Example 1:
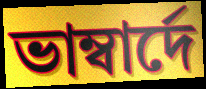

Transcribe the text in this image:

ভাম্বাৰ্দে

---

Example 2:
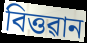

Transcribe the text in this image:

বিত্তৱান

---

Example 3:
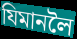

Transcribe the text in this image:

যিমানলৈ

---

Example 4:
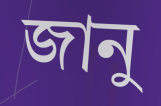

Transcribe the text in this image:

জানু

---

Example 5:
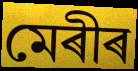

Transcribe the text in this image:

মেৰীৰ